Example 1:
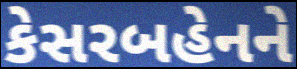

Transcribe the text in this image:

કેસરબહેનને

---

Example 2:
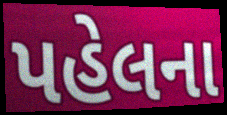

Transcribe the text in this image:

પહેલના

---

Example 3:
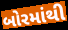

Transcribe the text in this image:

બોરમાંથી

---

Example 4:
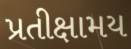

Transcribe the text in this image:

પ્રતીક્ષામય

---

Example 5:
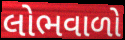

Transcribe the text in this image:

લોભવાળો